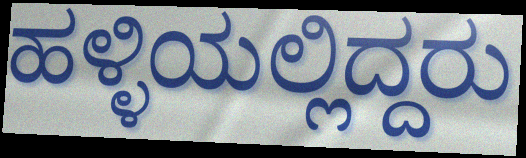
ಹಳ್ಳಿಯಲ್ಲಿದ್ದರು